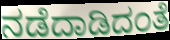
ನಡೆದಾಡಿದಂತೆ